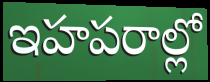
ఇహపరాల్లో